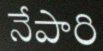
నేపారి